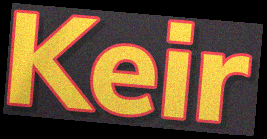
Keir